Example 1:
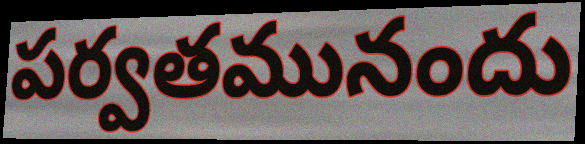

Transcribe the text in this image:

పర్వతమునందు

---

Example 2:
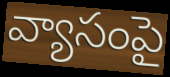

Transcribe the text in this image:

వ్యాసంపై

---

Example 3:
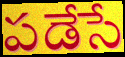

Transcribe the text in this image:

పడేసే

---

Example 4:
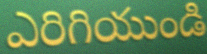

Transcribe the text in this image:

ఎరిగియుండి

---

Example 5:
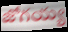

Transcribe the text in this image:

జోగయ్య